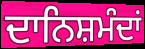
ਦਾਨਿਸ਼ਮੰਦਾਂ